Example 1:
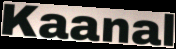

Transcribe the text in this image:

Kaanal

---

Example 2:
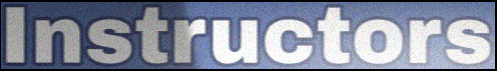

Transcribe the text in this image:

Instructors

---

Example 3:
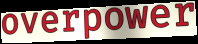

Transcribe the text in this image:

overpower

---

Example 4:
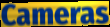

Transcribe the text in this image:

Cameras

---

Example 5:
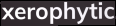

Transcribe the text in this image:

xerophytic